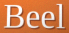
Beel